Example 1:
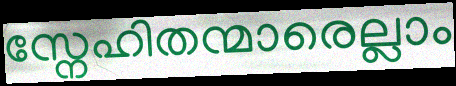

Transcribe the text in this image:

സ്നേഹിതന്മാരെല്ലാം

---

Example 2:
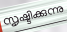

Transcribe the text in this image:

സൃഷ്ടിക്കുന്നു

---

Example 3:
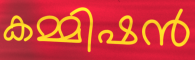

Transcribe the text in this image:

കമ്മിഷൻ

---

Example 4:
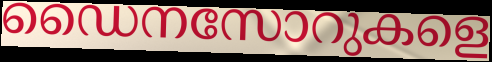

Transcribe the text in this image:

ഡൈനസോറുകളെ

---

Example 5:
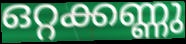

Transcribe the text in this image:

ഒറ്റക്കണ്ണു